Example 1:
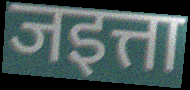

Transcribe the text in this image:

जइत्ता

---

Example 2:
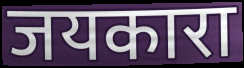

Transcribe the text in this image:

जयकारा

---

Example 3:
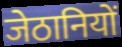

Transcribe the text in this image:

जेठानियों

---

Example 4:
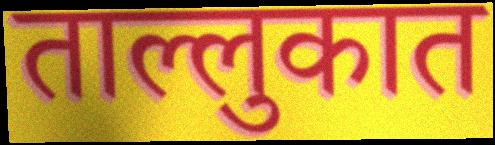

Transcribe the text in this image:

ताल्लुकात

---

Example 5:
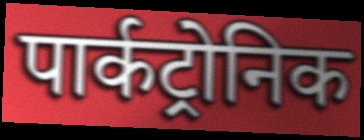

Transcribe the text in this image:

पार्कट्रोनिक